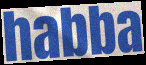
habba